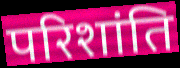
परिशांति